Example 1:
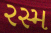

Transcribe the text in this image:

રસ્મ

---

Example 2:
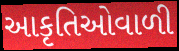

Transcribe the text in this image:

આકૃતિઓવાળી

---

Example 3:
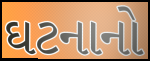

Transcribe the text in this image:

ઘટનાનો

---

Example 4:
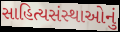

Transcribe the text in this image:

સાહિત્યસંસ્થાઓનું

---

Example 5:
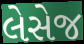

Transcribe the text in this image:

લેસેજ